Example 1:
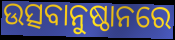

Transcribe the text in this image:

ଉତ୍ସବାନୁଷ୍ଠାନରେ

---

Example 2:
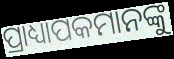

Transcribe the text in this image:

ପ୍ରାଧ୍ୟାପକମାନଙ୍କୁ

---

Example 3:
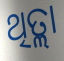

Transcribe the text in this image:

ଥିତ୍ଲା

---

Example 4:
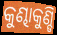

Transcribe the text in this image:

କୁଣ୍ଢାକୁଣ୍ଡି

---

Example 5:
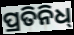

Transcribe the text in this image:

ପ୍ରତିନିଧ୍